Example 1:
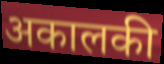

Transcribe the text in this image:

अकालकी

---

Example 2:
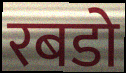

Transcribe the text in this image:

रबडो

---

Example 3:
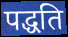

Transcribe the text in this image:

पद्धति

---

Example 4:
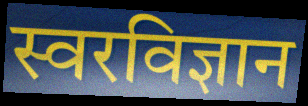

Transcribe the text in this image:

स्वरविज्ञान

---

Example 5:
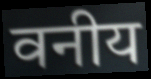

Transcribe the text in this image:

वनीय